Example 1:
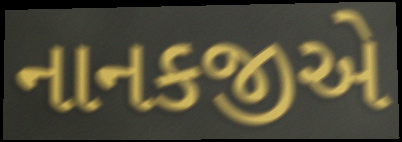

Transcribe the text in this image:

નાનકજીએ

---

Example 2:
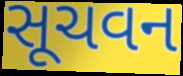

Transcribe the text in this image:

સૂચવન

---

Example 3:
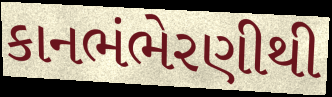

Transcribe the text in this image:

કાનભંભેરણીથી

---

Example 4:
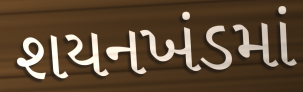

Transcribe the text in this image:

શયનખંડમાં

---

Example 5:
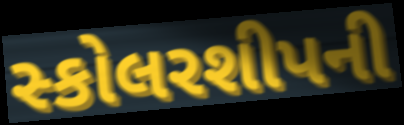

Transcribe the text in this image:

સ્કોલરશીપની